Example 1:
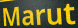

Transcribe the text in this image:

Marut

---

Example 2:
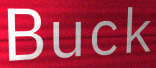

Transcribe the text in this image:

Buck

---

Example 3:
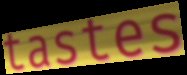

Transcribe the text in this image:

tastes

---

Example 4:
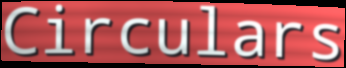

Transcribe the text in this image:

Circulars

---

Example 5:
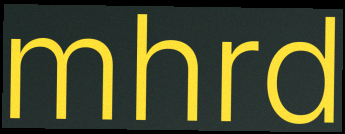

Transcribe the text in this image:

mhrd